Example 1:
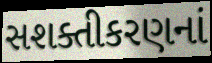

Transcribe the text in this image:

સશક્તીકરણનાં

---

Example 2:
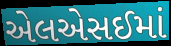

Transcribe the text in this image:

એલએસઈમાં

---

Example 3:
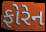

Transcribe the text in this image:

ફોરેન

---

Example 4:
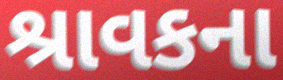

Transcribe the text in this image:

શ્રાવકના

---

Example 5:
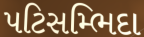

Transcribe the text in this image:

પટિસમ્ભિદા